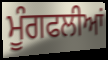
ਮੂੰਗਫਲੀਆਂ